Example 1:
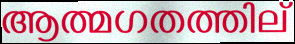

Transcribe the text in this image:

ആത്മഗതത്തില്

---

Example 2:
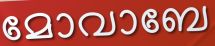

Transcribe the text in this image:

മോവാബേ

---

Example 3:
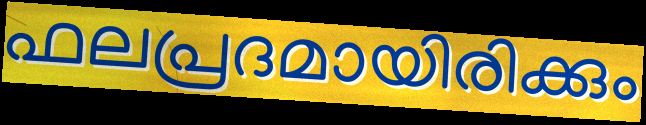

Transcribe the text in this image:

ഫലപ്രദമായിരിക്കും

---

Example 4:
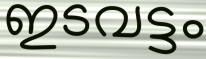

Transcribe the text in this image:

ഇടവട്ടം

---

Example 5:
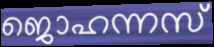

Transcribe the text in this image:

ജൊഹന്നസ്